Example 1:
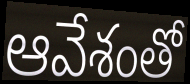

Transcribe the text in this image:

ఆవేశంతో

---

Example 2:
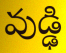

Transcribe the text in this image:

వుడ్ఢి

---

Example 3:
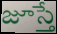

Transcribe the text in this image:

జూస్తే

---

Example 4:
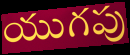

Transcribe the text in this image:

యుగపు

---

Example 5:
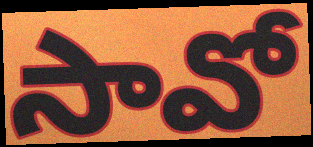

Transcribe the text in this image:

సావో